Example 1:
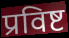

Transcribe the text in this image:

प्रविष्ट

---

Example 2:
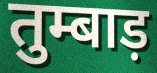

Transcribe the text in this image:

तुम्बाड़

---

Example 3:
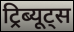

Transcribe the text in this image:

ट्रिब्यूट्स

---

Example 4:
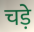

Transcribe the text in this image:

चड़े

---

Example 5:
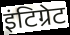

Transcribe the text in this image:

इंटिग्रेट